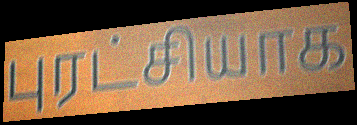
புரட்சியாக